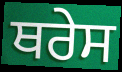
ਥਰੇਸ